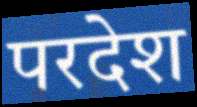
परदेश